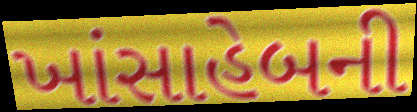
ખાંસાહેબની